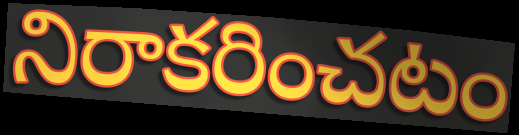
నిరాకరించటం